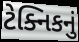
ટેક્નિકનું